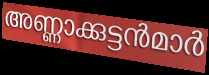
അണ്ണാക്കുട്ടൻമാർ